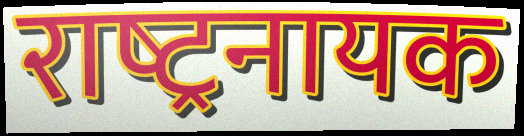
राष्ट्रनायक